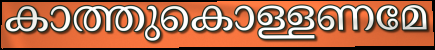
കാത്തുകൊള്ളണമേ